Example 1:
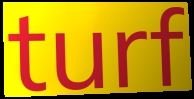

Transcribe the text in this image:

turf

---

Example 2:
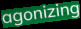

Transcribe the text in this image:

agonizing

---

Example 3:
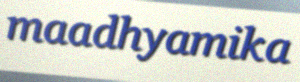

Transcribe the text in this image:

maadhyamika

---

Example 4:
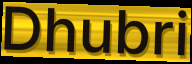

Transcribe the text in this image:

Dhubri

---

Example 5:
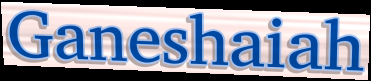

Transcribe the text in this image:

Ganeshaiah